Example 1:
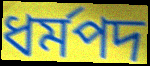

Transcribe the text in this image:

ধর্মপদ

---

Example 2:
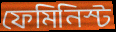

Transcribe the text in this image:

ফেমিনিস্ট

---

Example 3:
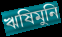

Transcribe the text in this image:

ঋষিমুনি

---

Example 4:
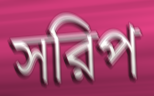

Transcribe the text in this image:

সরিপ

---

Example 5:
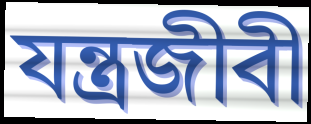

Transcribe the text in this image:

যন্ত্রজীবী